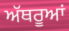
ਅੱਥਰੂਆਂ